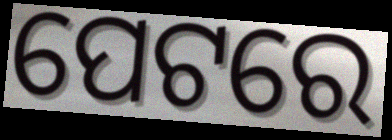
ପେଟରେ